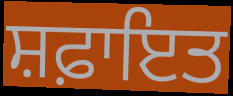
ਸ਼ਫ਼ਾਇਤ